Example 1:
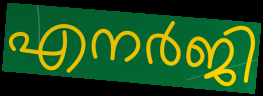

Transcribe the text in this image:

എനർജി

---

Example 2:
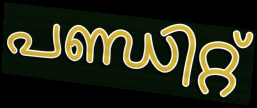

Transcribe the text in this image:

പണ്ഡിറ്റ്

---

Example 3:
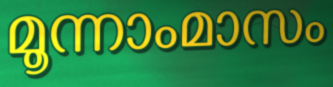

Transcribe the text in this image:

മൂന്നാംമാസം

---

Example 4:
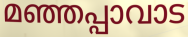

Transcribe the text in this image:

മഞ്ഞപ്പാവാട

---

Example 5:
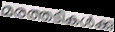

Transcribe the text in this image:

മരത്തടികൾക്കു